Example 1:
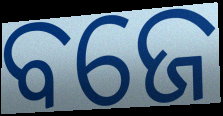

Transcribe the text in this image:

ବଜେ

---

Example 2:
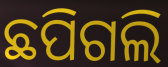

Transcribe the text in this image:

ଛପିଗଲି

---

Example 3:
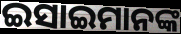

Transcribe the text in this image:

ଇସାଇମାନଙ୍କ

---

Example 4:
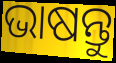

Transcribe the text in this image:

ଭାଷନ୍ତୁ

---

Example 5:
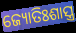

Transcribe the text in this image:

ଜ୍ୟୋତିଃଶାସ୍ତ୍ର